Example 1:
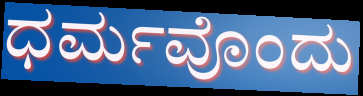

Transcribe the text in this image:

ಧರ್ಮವೊಂದು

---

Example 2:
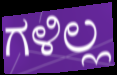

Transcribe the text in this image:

ಗಳಿಲ್ಲ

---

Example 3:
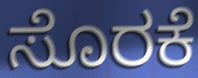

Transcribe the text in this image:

ಸೊರಕೆ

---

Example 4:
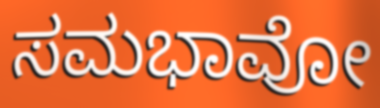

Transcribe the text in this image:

ಸಮಭಾವೋ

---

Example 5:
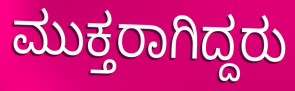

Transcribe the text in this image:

ಮುಕ್ತರಾಗಿದ್ದರು